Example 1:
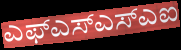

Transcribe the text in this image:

ಎಫ್ಎಸ್ಎಸ್ಎಐ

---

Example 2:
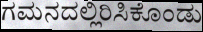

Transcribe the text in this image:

ಗಮನದಲ್ಲಿರಿಸಿಕೊಂಡು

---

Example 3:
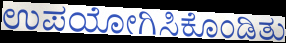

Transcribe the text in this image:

ಉಪಯೋಗಿಸಿಕೊಂಡಿತು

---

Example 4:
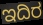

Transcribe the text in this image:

ಇದಿರ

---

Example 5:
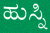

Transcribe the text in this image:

ಹುಸ್ನಿ